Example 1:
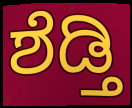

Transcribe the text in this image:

ಶೆಡ್ತಿ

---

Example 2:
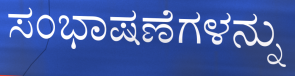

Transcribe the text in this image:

ಸಂಭಾಷಣೆಗಳನ್ನು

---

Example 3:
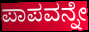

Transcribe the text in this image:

ಪಾಪವನ್ನೇ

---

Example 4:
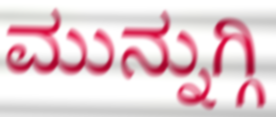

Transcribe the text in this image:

ಮುನ್ನುಗ್ಗಿ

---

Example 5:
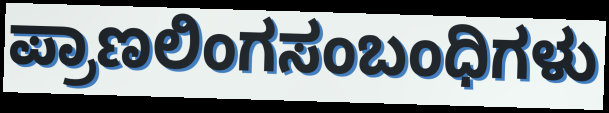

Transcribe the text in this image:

ಪ್ರಾಣಲಿಂಗಸಂಬಂಧಿಗಳು